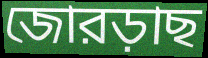
জোরড়াছ